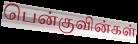
பென்குவின்கள்